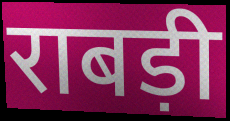
राबड़ी